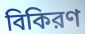
বিকিরণ